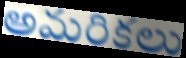
అమరికలు